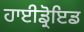
ਹਾਈਡ੍ਰੋਇਡ